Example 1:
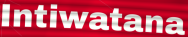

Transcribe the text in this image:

Intiwatana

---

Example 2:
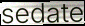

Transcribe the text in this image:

sedate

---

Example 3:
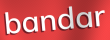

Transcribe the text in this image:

bandar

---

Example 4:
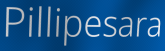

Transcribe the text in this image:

Pillipesara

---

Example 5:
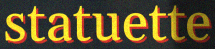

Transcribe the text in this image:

statuette